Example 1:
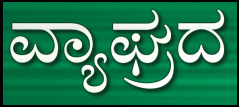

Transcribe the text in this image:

ವ್ಯಾಘ್ರದ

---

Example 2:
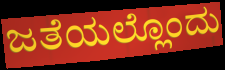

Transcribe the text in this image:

ಜತೆಯಲ್ಲೊಂದು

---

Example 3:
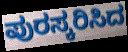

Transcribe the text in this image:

ಪುರಸ್ಕರಿಸಿದ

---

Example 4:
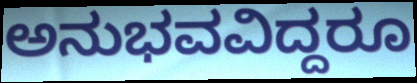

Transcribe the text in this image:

ಅನುಭವವಿದ್ದರೂ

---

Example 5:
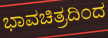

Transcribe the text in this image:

ಭಾವಚಿತ್ರದಿಂದ